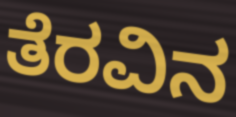
ತೆರವಿನ